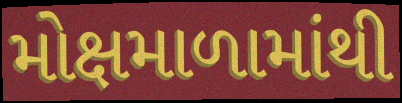
મોક્ષમાળામાંથી